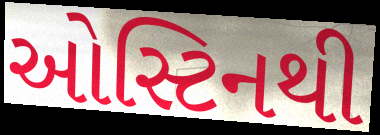
ઓસ્ટિનથી